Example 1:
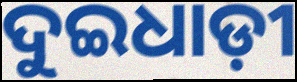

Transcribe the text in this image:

ଦୁଇଧାଡ଼ୀ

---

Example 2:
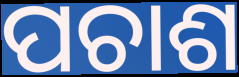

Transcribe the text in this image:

ପଚାଶ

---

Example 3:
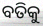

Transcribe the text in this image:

ବତିକୁ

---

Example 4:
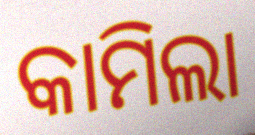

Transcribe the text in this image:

କାମିଲା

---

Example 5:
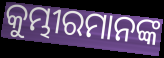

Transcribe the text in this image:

କୁମ୍ଭୀରମାନଙ୍କ